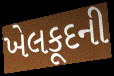
ખેલકૂદની